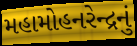
મહામોહનરેન્દ્રનું